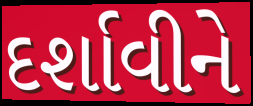
દર્શાવીને